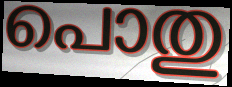
പൊതു